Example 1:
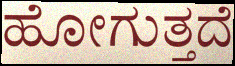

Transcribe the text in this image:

ಹೋಗುತ್ತದೆ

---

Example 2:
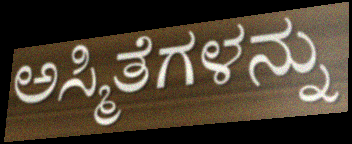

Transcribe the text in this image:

ಅಸ್ಮಿತೆಗಳನ್ನು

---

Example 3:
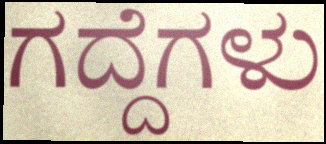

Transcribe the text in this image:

ಗದ್ದೆಗಳು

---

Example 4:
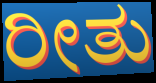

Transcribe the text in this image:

ರೀತು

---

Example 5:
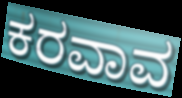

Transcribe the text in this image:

ಕರವಾವ